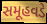
સમૂહવડે